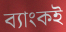
ব্যাংকই